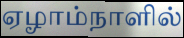
ஏழாம்நாளில்